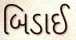
બિડાઈ